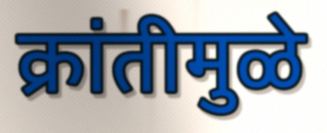
क्रांतीमुळे